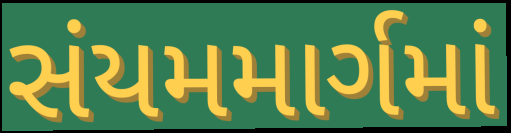
સંયમમાર્ગમાં